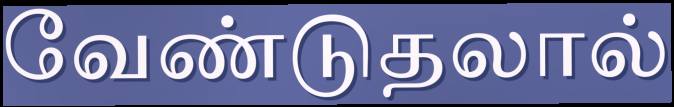
வேண்டுதலால்